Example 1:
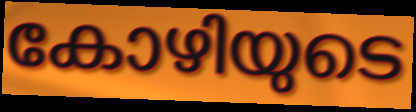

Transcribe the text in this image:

കോഴിയുടെ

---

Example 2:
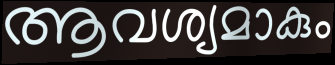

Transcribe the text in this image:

ആവശ്യമാകും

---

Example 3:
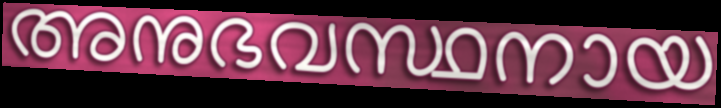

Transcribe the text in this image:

അനുഭവസ്ഥനായ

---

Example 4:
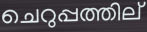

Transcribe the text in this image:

ചെറുപ്പത്തില്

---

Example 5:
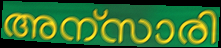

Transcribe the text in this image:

അന്സാരി